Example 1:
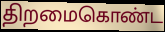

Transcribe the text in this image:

திறமைகொண்ட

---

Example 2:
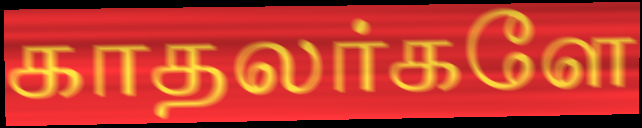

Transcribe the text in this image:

காதலர்களே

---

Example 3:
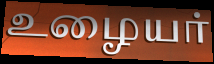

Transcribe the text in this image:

உழையர்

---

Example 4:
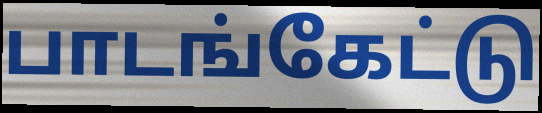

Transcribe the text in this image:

பாடங்கேட்டு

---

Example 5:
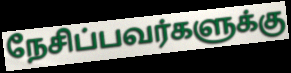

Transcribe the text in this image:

நேசிப்பவர்களுக்கு